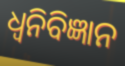
ଧ୍ୱନିବିଜ୍ଞାନ